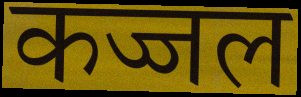
कज्जल